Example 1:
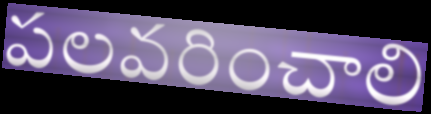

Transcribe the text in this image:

పలవరించాలి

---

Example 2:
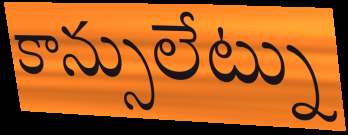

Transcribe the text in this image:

కాన్సులేట్ను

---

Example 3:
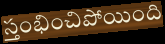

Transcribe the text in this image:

స్తంభించిపోయింది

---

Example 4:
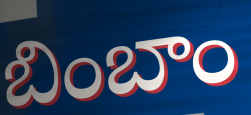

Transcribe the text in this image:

బింబాం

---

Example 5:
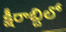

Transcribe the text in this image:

క్షీరాబ్దిలో